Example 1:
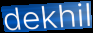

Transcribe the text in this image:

dekhil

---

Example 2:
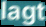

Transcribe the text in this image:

lagt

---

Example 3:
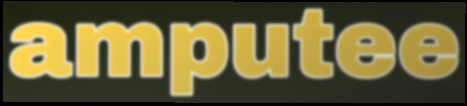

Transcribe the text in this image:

amputee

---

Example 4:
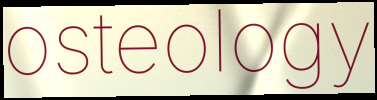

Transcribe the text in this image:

osteology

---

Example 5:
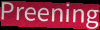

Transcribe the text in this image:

Preening